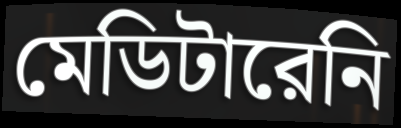
মেডিটারেনি